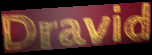
Dravid